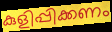
കുളിപ്പിക്കണം